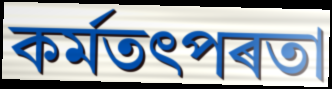
কৰ্মতৎপৰতা